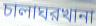
চালাঘরখানা